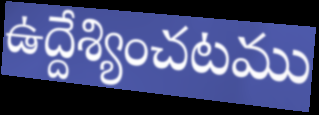
ఉద్దేశ్యించటము